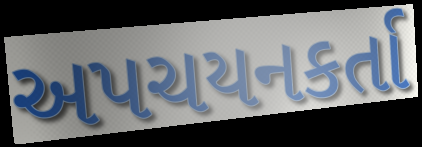
અપચયનકર્તા